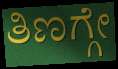
ತಿಣಗ್ಗೇ